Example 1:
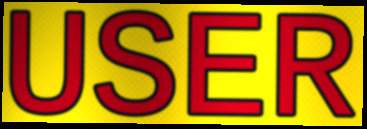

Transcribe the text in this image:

USER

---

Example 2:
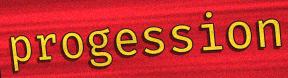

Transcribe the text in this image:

progession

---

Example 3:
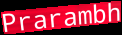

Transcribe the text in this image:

Prarambh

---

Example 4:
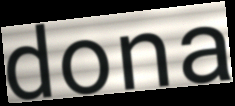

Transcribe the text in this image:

dona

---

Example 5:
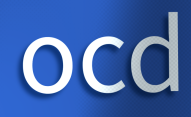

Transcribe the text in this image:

ocd